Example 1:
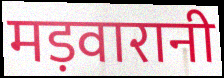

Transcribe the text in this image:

मड़वारानी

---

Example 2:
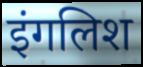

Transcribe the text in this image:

इंगलिश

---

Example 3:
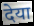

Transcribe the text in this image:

देया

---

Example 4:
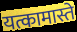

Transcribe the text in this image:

यत्कामास्ते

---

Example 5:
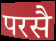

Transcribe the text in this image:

परसै